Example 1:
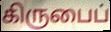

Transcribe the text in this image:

கிருபைப்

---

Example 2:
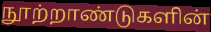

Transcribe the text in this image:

நூற்றாண்டுகளின்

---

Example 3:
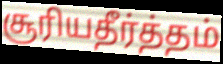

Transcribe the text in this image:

சூரியதீர்த்தம்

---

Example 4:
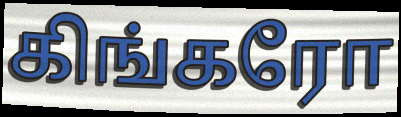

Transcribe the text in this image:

கிங்கரோ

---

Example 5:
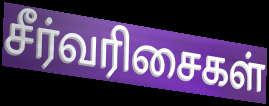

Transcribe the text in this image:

சீர்வரிசைகள்